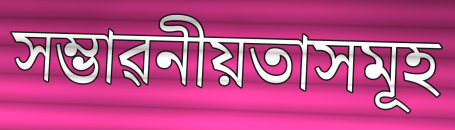
সম্ভাৱনীয়তাসমূহ